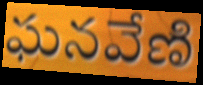
ఘనవేణి